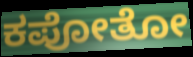
ಕಪೋತೋ